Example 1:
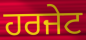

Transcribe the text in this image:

ਹਰਜੇਟ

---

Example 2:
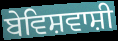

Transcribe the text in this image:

ਬੇਵਿਸ਼ਵਾਸ਼ੀ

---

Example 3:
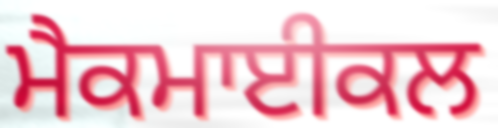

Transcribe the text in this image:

ਮੈਕਮਾਈਕਲ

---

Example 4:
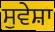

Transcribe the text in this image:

ਸੁਵੇਸ਼ਾ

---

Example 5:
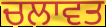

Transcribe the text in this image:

ਚਲਾਵਤ